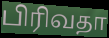
பிரிவதா